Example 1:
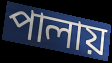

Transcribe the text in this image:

পালায়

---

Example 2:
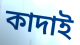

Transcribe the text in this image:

কাদাই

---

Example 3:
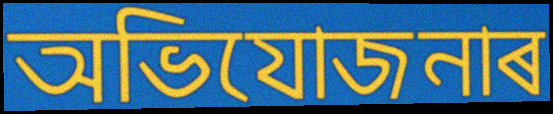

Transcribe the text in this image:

অভিযোজনাৰ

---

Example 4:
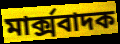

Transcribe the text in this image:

মাৰ্ক্সবাদক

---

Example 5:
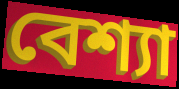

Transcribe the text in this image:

বেশ্যা